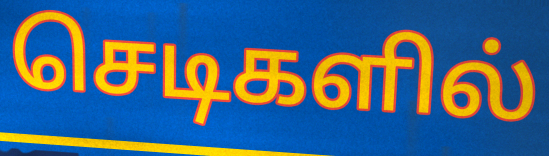
செடிகளில்